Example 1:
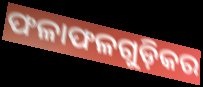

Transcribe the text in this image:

ଫଳାଫଳଗୁଡ଼ିକର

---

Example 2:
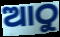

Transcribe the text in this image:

ଆଠୁ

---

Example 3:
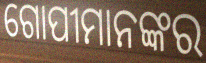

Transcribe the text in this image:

ଗୋପୀମାନଙ୍କର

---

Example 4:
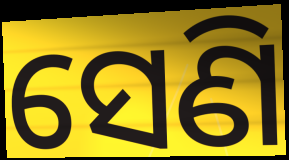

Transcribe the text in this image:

ସେଣି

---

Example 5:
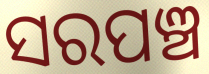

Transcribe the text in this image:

ସରପଞ୍ଚ